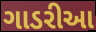
ગાડરીઆ